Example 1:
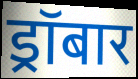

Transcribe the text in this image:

ड्रॉबार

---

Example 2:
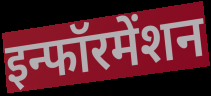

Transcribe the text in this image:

इन्फॉरमेंशन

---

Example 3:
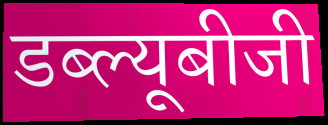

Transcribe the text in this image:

डब्ल्यूबीजी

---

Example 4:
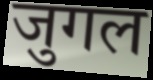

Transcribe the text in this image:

जुगल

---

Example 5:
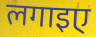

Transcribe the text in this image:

लगाइए